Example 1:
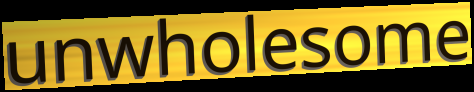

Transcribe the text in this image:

unwholesome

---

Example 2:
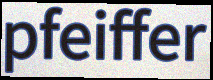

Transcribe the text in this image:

pfeiffer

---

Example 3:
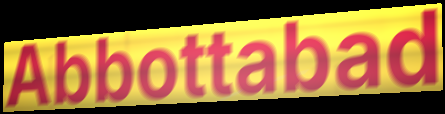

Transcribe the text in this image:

Abbottabad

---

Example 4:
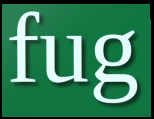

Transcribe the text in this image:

fug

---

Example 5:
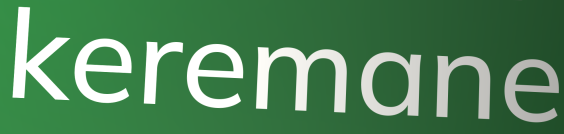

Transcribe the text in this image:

keremane